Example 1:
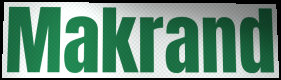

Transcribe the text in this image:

Makrand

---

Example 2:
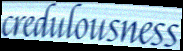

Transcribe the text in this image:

credulousness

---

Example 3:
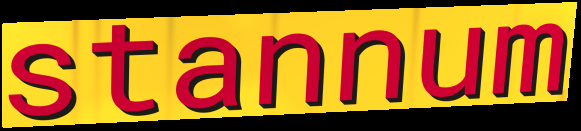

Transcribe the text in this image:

stannum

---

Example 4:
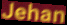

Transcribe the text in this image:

Jehan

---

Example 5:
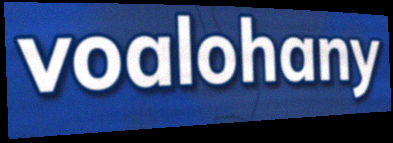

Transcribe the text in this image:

voalohany